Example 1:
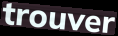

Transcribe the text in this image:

trouver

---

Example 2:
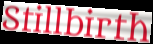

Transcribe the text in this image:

Stillbirth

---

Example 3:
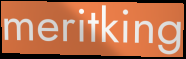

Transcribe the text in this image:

meritking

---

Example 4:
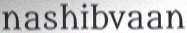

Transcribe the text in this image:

nashibvaan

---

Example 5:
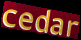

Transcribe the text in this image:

cedar